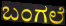
ಬಂಗಲೆ